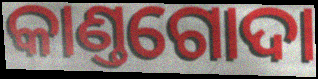
କାଣ୍ତଗୋଦା